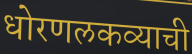
धोरणलकव्याची